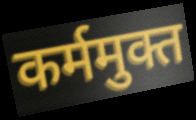
कर्ममुक्त